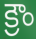
క్రౌం